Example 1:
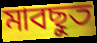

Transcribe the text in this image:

মাবছুত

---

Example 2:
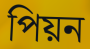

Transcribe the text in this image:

পিয়ন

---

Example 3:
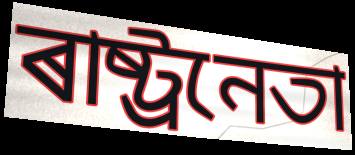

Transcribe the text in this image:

ৰাষ্ট্ৰনেতা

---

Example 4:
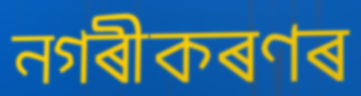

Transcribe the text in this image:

নগৰীকৰণৰ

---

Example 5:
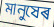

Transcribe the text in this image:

মানুষেৰ